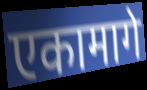
एकामागे